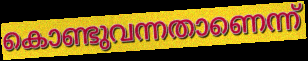
കൊണ്ടുവന്നതാണെന്ന്